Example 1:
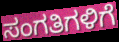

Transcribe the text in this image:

ಸಂಗತಿಗಳಿಗೆ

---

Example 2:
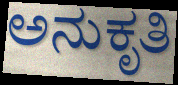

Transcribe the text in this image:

ಅನುಕೃತಿ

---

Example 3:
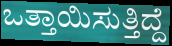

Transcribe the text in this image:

ಒತ್ತಾಯಿಸುತ್ತಿದ್ದೆ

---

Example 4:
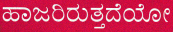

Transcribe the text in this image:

ಹಾಜರಿರುತ್ತದೆಯೋ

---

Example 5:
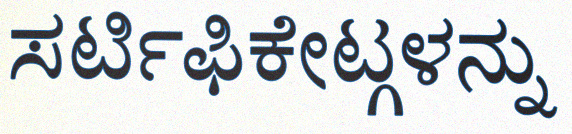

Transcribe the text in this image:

ಸರ್ಟಿಫಿಕೇಟ್ಗಳನ್ನು